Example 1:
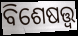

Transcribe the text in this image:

ବିଶେଷତ୍ତ୍ୱ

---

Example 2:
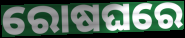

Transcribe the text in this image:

ରୋଷଘରେ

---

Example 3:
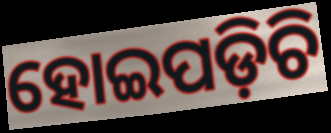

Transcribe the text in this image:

ହୋଇପଡ଼ିଚି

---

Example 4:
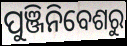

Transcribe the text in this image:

ପୁଞ୍ଜିନିବେଶରୁ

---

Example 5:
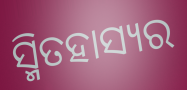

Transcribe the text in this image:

ସ୍ମିତହାସ୍ୟର